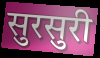
सुरसुरी